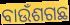
ବାଉଁଶଗଛ